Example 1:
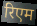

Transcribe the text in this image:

रिएम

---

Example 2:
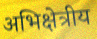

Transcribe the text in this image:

अभिक्षेत्रीय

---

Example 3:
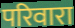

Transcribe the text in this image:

परिवारा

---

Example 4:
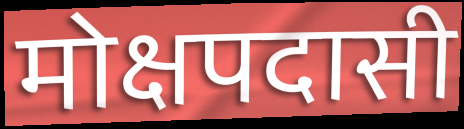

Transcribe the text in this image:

मोक्षपदासी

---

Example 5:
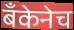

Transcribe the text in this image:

बँकेनेच